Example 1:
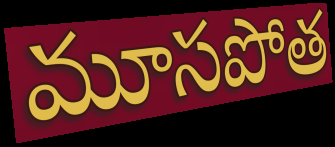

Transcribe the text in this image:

మూసపోత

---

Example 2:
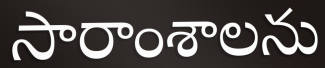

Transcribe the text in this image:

సారాంశాలను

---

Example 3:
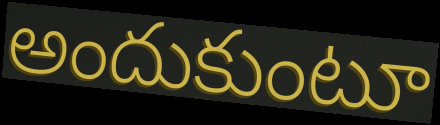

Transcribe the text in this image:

అందుకుంటూ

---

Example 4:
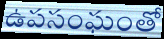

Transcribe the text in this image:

ఉపసంఘంతో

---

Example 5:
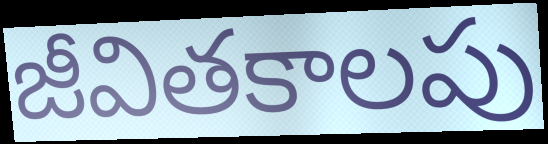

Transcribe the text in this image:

జీవితకాలపు